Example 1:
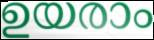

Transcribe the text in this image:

ഉയരാം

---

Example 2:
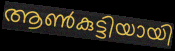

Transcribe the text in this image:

ആൺകുട്ടിയായി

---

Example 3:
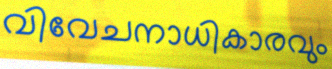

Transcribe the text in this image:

വിവേചനാധികാരവും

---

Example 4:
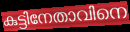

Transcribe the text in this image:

കുട്ടിനേതാവിനെ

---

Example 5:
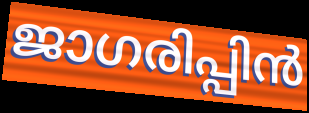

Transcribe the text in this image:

ജാഗരിപ്പിൻ